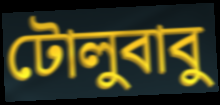
টোলুবাবু